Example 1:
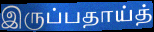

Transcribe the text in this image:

இருப்பதாய்த்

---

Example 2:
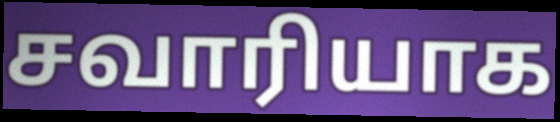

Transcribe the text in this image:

சவாரியாக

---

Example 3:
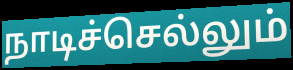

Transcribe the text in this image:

நாடிச்செல்லும்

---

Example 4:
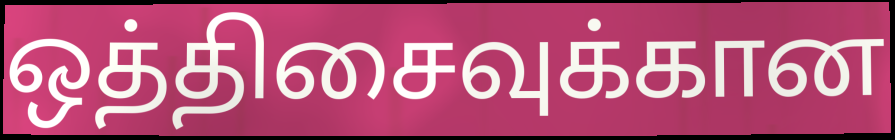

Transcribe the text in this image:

ஒத்திசைவுக்கான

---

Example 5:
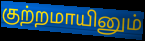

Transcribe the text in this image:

குற்றமாயினும்